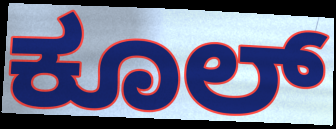
ಕೂಲ್